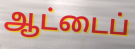
ஆட்டைப்